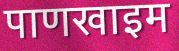
पाणखाइम